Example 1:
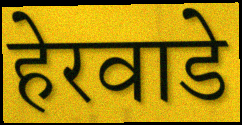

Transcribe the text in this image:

हेरवाडे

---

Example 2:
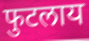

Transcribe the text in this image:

फुटलाय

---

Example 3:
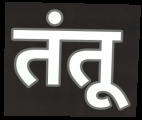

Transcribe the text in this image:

तंतू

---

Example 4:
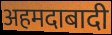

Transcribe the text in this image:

अहमदाबादी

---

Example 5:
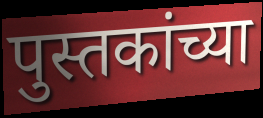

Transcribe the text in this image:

पुस्तकांच्या